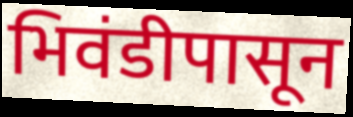
भिवंडीपासून